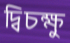
দ্বিচক্ষু